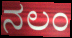
ನಲಂ